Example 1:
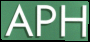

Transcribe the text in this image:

APH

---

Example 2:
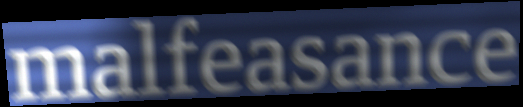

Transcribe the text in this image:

malfeasance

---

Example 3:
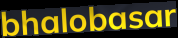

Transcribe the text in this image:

bhalobasar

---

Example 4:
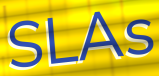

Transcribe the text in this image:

SLAs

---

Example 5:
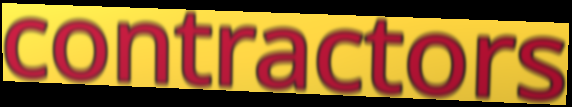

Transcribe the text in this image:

contractors